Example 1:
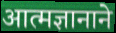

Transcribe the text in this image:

आत्मज्ञानाने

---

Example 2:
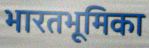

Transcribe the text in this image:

भारतभूमिका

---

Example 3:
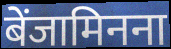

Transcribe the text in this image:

बेंजामिनना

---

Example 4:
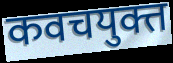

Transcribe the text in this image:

कवचयुक्त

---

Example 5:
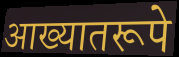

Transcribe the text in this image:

आख्यातरूपे